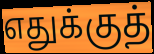
எதுக்குத்